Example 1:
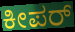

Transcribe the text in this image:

ಕೀಪರ್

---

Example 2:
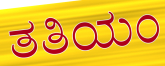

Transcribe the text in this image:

ತತಿಯಂ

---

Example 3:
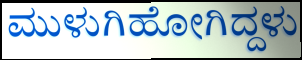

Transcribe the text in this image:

ಮುಳುಗಿಹೋಗಿದ್ದಳು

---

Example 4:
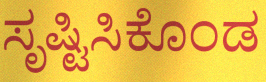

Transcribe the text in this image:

ಸೃಷ್ಟಿಸಿಕೊಂಡ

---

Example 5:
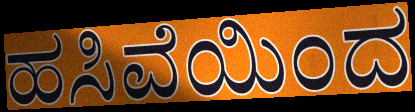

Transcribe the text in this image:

ಹಸಿವೆಯಿಂದ